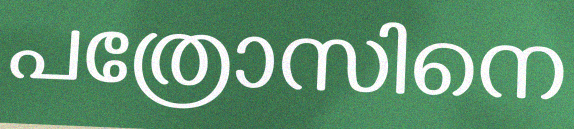
പത്രോസിനെ